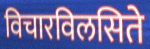
विचारविलसिते